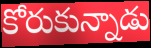
కోరుకున్నాడు